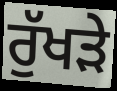
ਰੁੱਖੜੇ